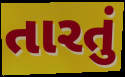
તારતું